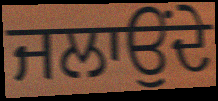
ਜਲਾਉਂਦੇ